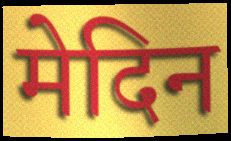
मेदिन